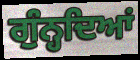
ਗੁੰਨ੍ਹਦਿਆਂ